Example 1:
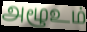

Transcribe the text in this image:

அழூஉம்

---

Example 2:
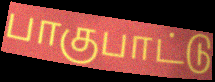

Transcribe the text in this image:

பாகுபாட்டு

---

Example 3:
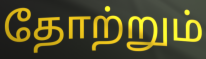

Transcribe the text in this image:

தோற்றும்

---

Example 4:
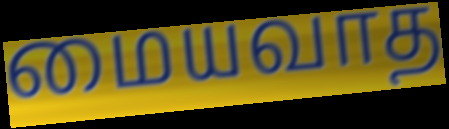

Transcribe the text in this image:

மையவாத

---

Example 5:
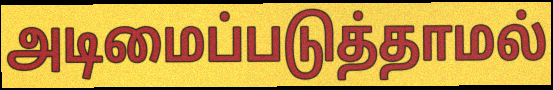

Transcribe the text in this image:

அடிமைப்படுத்தாமல்